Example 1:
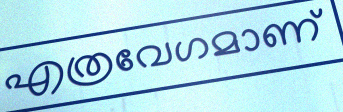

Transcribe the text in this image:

എത്രവേഗമാണ്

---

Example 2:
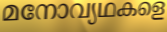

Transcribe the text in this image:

മനോവ്യഥകളെ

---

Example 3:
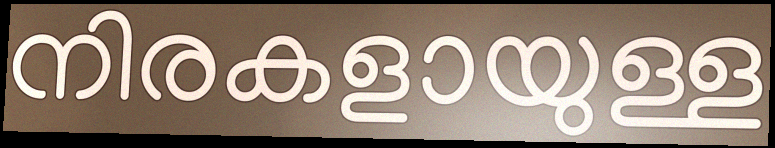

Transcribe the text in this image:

നിരകളായുള്ള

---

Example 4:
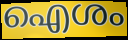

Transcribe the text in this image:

ഐശം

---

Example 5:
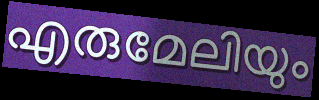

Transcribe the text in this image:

എരുമേലിയും